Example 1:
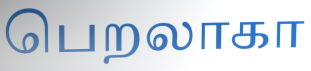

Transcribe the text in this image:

பெறலாகா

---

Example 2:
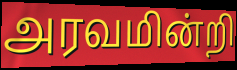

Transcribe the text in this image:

அரவமின்றி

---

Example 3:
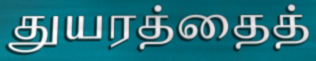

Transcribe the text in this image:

துயரத்தைத்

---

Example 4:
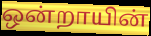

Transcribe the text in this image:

ஒன்றாயின்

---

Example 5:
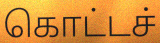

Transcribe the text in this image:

கொட்டச்